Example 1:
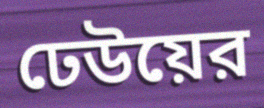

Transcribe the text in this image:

ঢেউয়ের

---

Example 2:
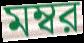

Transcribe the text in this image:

মম্বর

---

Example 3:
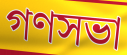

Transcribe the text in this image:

গণসভা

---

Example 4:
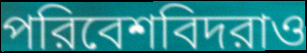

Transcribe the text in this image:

পরিবেশবিদরাও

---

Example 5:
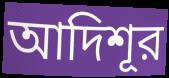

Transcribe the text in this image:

আদিশূর